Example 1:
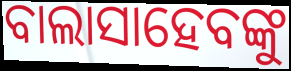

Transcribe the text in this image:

ବାଲାସାହେବଙ୍କୁ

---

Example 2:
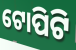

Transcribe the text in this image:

ଟୋପିଟି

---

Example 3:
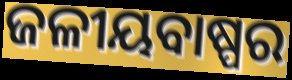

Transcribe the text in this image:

ଜଳୀୟବାଷ୍ପର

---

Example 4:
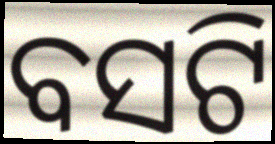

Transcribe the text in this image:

ବସଟି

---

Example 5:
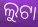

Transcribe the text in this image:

ଲୁଟା